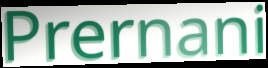
Prernani